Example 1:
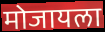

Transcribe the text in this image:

मोजायला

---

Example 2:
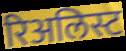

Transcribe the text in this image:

रिअलिस्ट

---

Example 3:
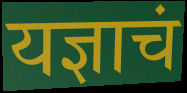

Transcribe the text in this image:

यज्ञाचं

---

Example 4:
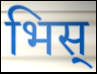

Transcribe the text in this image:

भिस्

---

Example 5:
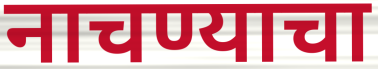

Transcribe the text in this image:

नाचण्याचा